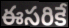
ఈసరికే